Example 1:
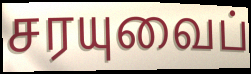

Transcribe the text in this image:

சரயுவைப்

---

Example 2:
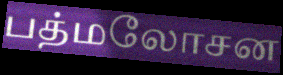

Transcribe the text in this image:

பத்மலோசன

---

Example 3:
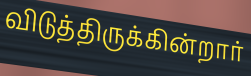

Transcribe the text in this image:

விடுத்திருக்கின்றார்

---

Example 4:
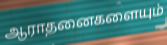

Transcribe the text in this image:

ஆராதனைகளையும்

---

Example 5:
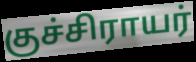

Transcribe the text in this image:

குச்சிராயர்